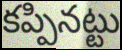
కప్పినట్టు